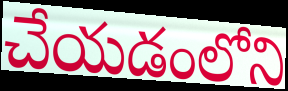
చేయడంలోని